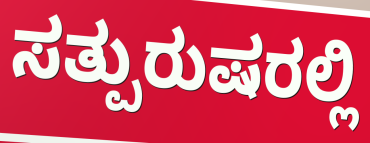
ಸತ್ಪುರುಷರಲ್ಲಿ